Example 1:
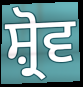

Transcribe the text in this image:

ਸ਼੍ਰੋਵ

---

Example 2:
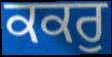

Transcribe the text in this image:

ਕਕਰੁ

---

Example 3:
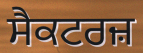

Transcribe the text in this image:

ਸੈਕਟਰਜ਼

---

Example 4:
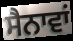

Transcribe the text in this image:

ਸੈਨਾਵਾਂ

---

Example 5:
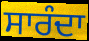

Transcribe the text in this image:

ਸਾਰੰਦਾ